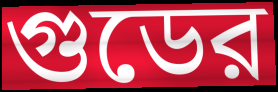
গুডের